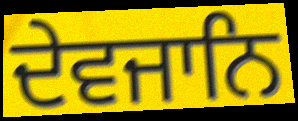
ਦੇਵਜਾਨਿ